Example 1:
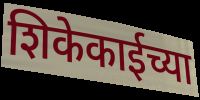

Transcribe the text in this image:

शिकेकाईच्या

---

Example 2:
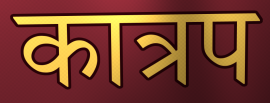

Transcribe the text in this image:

कात्रप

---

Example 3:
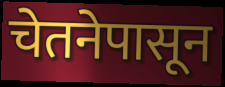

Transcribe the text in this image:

चेतनेपासून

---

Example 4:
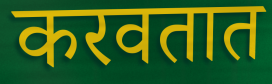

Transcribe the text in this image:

करवतात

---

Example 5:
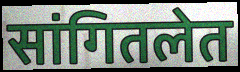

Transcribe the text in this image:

सांगितलेत